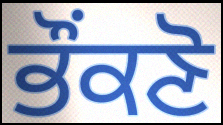
ਭੌਂਕਣੋ